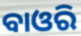
ବାଓରି